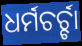
ଧର୍ମଚର୍ଚ୍ଚା